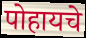
पोहायचे